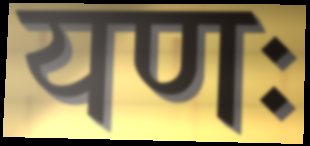
यणः